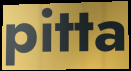
pitta